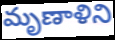
మృణాళిని